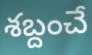
శబ్దంచే